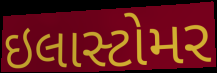
ઇલાસ્ટોમર